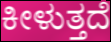
ಕೀಳುತ್ತದೆ